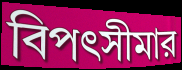
বিপৎসীমার